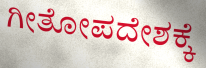
ಗೀತೋಪದೇಶಕ್ಕೆ